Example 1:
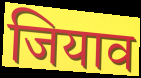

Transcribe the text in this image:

जियाव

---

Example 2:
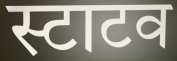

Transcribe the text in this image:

स्टाटव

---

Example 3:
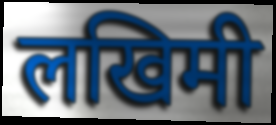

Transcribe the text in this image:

लखिमी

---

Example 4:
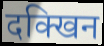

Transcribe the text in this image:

दक्खिन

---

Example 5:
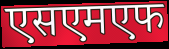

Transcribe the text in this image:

एसएमएफ